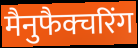
मैनुफैक्चरिंग